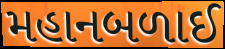
મહાનબળાઈ